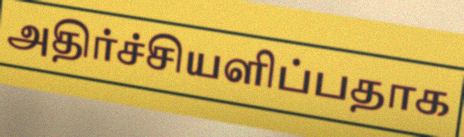
அதிர்ச்சியளிப்பதாக